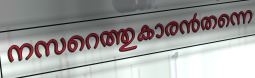
നസറെത്തുകാരൻതന്നെ